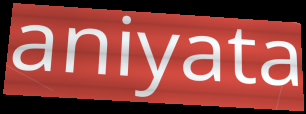
aniyata